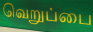
வெறுப்பை